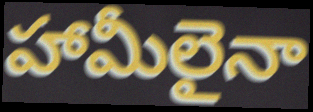
హామీలైనా